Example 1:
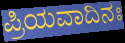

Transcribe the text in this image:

ಪ್ರಿಯವಾದಿನಃ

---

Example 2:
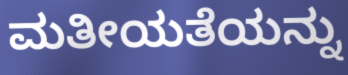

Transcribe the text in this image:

ಮತೀಯತೆಯನ್ನು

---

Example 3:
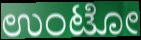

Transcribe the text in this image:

ಉಂಟೋ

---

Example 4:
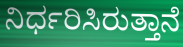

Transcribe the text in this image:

ನಿರ್ಧರಿಸಿರುತ್ತಾನೆ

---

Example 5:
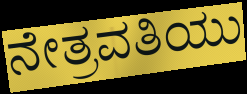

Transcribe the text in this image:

ನೇತ್ರವತಿಯು